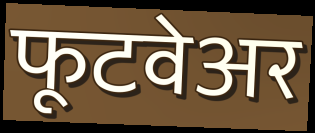
फूटवेअर